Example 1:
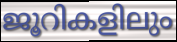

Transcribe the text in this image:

ജൂറികളിലും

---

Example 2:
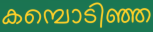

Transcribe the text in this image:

കമ്പൊടിഞ്ഞ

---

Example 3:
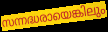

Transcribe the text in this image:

സന്നദ്ധരായെങ്കിലും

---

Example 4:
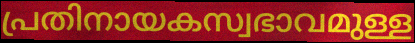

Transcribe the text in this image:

പ്രതിനായകസ്വഭാവമുള്ള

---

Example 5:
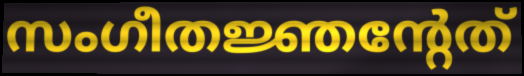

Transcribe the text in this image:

സംഗീതജ്ഞന്റേത്